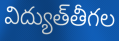
విద్యుత్‌తీగల